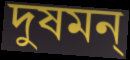
দুষমন্